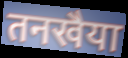
तनखैया